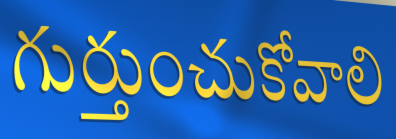
గుర్తుంచుకోవాలి